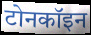
टोनकॉइन